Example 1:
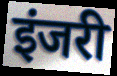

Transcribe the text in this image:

इंजरी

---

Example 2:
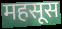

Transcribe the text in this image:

महसूस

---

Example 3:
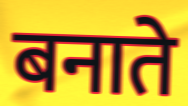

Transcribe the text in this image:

बनाते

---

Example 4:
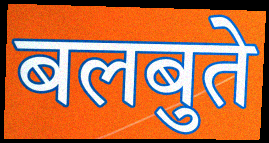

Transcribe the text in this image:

बलबुते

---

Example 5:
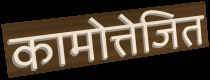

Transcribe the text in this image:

कामोत्तेजित